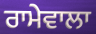
ਰਾਮੇਵਾਲਾ